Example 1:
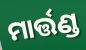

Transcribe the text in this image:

ମାର୍ତ୍ତଣ୍ଡ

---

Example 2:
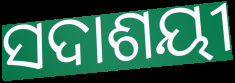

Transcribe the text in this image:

ସଦାଶୟୀ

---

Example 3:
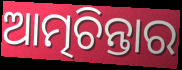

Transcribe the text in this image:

ଆତ୍ମଚିନ୍ତାର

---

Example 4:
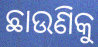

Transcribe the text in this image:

ଛାଉଣିକୁ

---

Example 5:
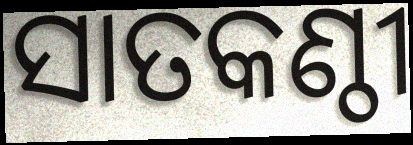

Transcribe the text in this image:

ସାତକଣ୍ଠୀ